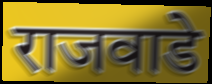
राजवाडे